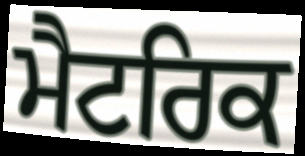
ਮੈਟਰਿਕ